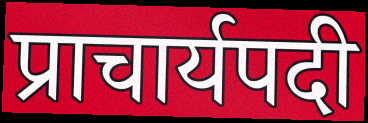
प्राचार्यपदी